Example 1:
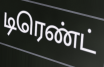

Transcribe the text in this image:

டிரெண்ட்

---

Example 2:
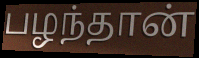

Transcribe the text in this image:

பழந்தான்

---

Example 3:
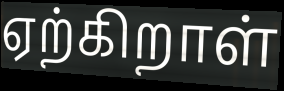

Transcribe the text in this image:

ஏற்கிறாள்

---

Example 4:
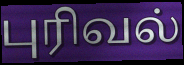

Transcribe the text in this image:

புரிவல்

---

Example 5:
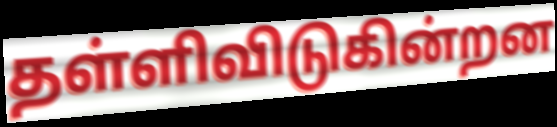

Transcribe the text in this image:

தள்ளிவிடுகின்றன